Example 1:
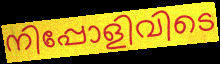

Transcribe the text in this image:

നിപ്പോളിവിടെ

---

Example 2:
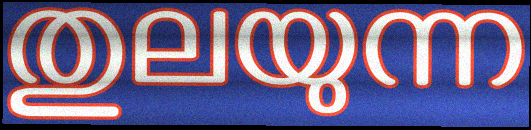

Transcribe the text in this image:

തുലയുന്ന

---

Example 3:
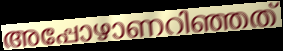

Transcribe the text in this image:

അപ്പോഴാണറിഞ്ഞത്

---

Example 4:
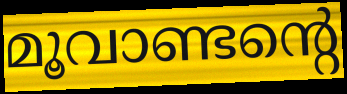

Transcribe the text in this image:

മൂവാണ്ടന്റെ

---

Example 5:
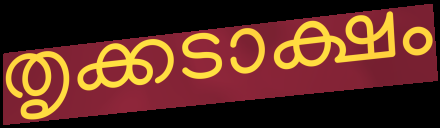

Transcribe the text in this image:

തൃക്കടാക്ഷം